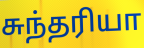
சுந்தரியா